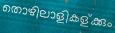
തൊഴിലാളികള്ക്കും